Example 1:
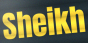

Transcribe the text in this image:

Sheikh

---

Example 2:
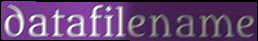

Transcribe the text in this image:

datafilename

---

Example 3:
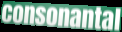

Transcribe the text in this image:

consonantal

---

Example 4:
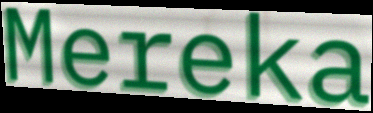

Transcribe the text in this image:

Mereka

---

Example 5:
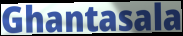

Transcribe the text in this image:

Ghantasala